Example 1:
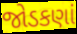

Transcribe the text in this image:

જોડકણાં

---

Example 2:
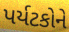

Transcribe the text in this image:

પર્યટકોને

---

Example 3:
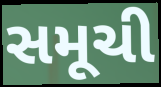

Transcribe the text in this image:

સમૂચી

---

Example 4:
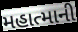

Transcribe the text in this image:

મહાત્માની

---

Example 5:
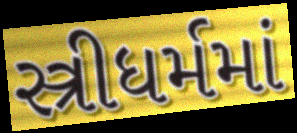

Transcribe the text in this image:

સ્ત્રીધર્મમાં